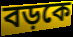
বড়কে